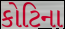
કોટિના